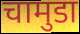
चामुडा